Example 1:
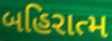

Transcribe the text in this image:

બહિરાત્મ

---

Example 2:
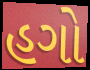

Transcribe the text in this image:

હગો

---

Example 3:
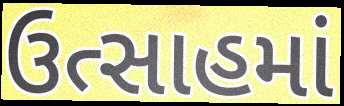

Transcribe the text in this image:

ઉત્સાહમાં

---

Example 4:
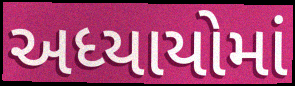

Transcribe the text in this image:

અધ્યાયોમાં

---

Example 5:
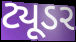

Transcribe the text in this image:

ટ્યૂડર